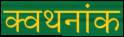
क्वथनांक